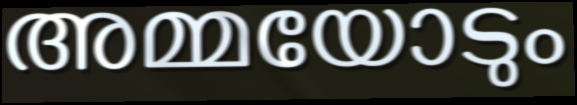
അമ്മയോടും